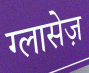
ग्लासेज़